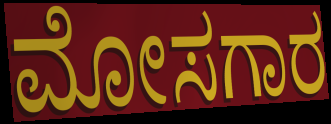
ಮೋಸಗಾರ